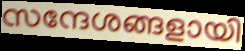
സന്ദേശങ്ങളായി